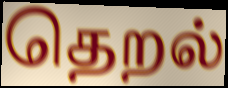
தெறல்